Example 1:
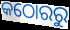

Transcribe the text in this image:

କଠୋରରୁ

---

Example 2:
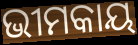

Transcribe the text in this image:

ଭୀମକାୟ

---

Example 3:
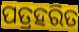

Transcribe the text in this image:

ପତ୍ରହରିତ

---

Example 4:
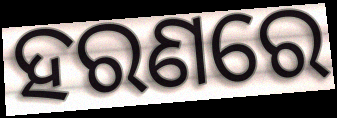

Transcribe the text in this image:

ହରଣରେ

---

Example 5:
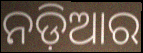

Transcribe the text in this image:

ନଡ଼ିଆର